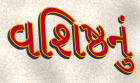
વશિષ્ઠનું